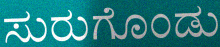
ಸುರುಗೊಂಡು